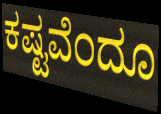
ಕಷ್ಟವೆಂದೂ